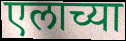
एलाच्या